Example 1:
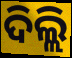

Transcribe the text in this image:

ଦିଲ୍ଲି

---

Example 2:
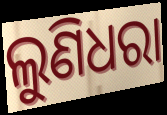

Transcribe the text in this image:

ଲୁଣିଧରା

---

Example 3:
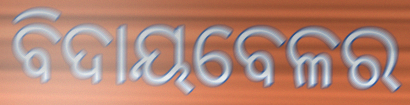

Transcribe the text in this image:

ବିଦାୟବେଳର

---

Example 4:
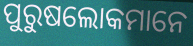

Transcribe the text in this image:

ପୁରୁଷଲୋକମାନେ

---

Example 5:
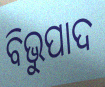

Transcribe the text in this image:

ବିଭୁପାଦ